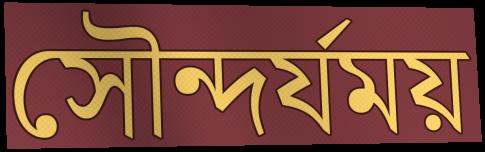
সৌন্দর্যময়